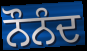
ਨੌਨੰਦ